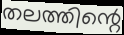
തലത്തിന്റെ